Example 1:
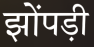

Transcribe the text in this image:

झोंपड़ी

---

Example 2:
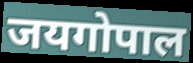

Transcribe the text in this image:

जयगोपाल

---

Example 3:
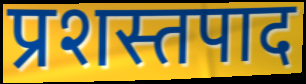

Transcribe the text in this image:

प्रशस्तपाद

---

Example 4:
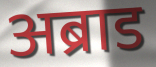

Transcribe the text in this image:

अब्राड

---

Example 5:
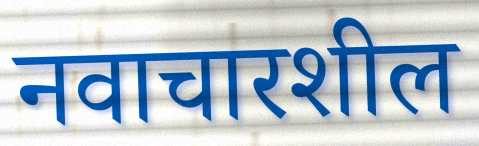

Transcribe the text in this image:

नवाचारशील